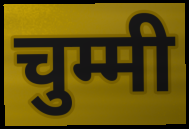
चुम्मी